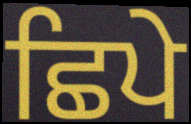
ਛਿਪੇ